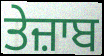
ਤੇਜ਼ਾਬ